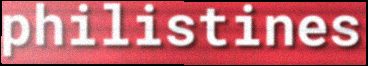
philistines